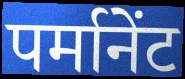
पर्मानेंट